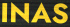
INAS